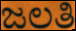
ಜಲತಿ